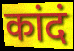
कांदं